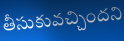
తీసుకువచ్చిందని